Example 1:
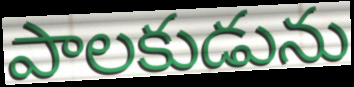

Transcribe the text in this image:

పాలకుడును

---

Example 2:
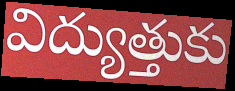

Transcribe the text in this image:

విద్యుత్తుకు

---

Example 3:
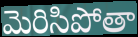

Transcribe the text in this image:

మెరిసిపోతా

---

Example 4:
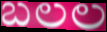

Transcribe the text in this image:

బలల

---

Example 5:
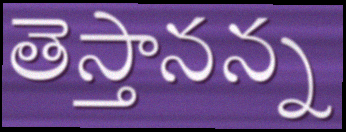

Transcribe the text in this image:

తెస్తానన్న